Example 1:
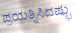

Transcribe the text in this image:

ಪ್ರಯತ್ನಿಸಿದಷ್ಟು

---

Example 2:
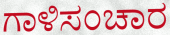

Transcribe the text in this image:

ಗಾಳಿಸಂಚಾರ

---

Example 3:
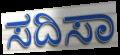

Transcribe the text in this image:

ಸದಿಸಾ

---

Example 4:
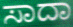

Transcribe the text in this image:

ಸಾದಾ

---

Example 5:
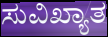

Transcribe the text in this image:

ಸುವಿಖ್ಯಾತ